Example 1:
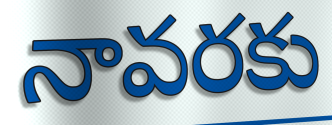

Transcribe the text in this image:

నావరకు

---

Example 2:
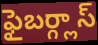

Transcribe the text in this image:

ఫైబర్గ్లాస్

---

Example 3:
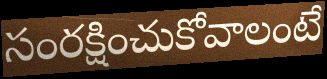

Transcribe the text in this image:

సంరక్షించుకోవాలంటే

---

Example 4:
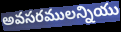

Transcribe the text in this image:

అవసరములన్నియు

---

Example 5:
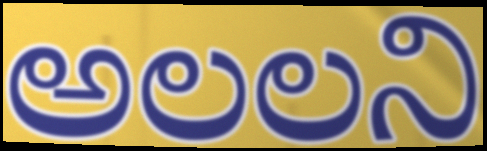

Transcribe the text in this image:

అలలని